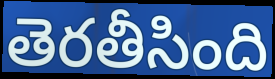
తెరతీసింది